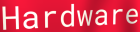
Hardware